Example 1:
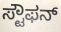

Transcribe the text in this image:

ಸ್ಟೌಫನ್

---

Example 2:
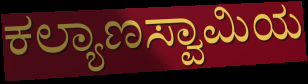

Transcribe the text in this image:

ಕಲ್ಯಾಣಸ್ವಾಮಿಯ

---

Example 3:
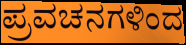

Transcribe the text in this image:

ಪ್ರವಚನಗಳಿಂದ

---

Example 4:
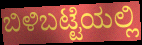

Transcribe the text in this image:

ಬಿಳಿಬಟ್ಟೆಯಲ್ಲಿ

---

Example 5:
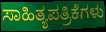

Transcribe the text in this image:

ಸಾಹಿತ್ಯಪತ್ರಿಕೆಗಳು